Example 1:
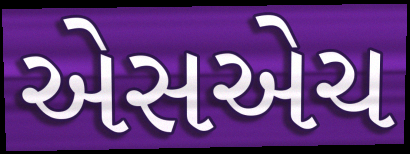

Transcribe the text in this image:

એસએચ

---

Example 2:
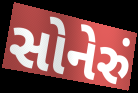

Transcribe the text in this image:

સોનેરું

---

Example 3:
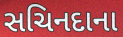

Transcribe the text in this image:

સચિનદાના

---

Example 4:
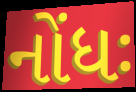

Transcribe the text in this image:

નોંધઃ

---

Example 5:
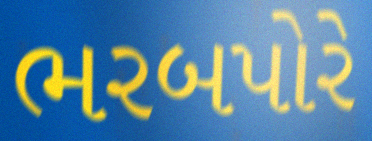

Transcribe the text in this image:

ભરબપોરે